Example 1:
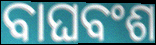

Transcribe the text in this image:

ବାଘବଂଶ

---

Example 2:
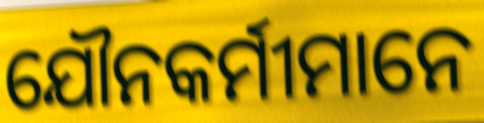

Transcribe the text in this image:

ଯୌନକର୍ମୀମାନେ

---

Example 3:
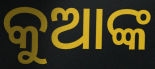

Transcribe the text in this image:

କୁଆଙ୍କ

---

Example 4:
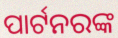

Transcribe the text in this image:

ପାର୍ଟନରଙ୍କ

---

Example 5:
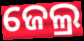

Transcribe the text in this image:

ଜେଲ୍ର